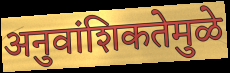
अनुवांशिकतेमुळे